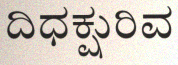
ದಿಧಕ್ಷುರಿವ